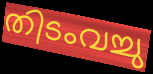
തിടംവച്ചു